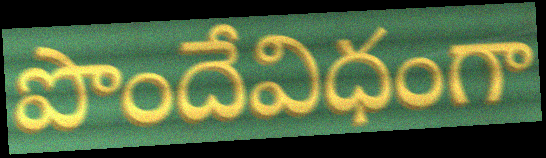
పొందేవిధంగా